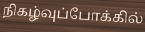
நிகழ்வுப்போக்கில்